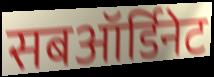
सबऑर्डिनेट